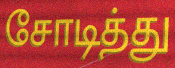
சோடித்து